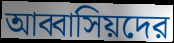
আব্বাসিয়দের